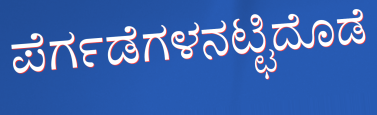
ಪೆರ್ಗಡೆಗಳನಟ್ಟಿದೊಡೆ